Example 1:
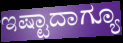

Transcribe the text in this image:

ಇಷ್ಟಾದಾಗ್ಯೂ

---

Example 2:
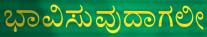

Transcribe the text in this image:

ಭಾವಿಸುವುದಾಗಲೀ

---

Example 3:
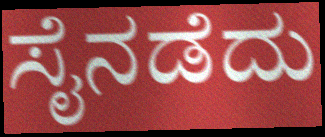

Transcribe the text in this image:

ಸೈನಡೆದು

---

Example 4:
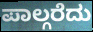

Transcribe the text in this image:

ಪಾಲ್ಗರೆದು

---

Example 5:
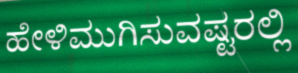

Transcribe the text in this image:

ಹೇಳಿಮುಗಿಸುವಷ್ಟರಲ್ಲಿ